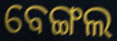
ବେଙ୍ଗଲ